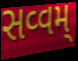
સવ્વમ્